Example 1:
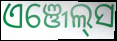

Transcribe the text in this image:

ଏଞ୍ଜେଲ୍‍ସ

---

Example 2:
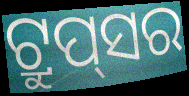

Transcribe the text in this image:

ଟ୍ରୁପ୍‌ସର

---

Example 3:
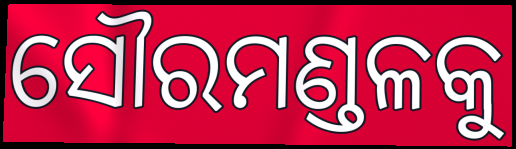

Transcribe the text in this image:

ସୌରମଣ୍ଡଳକୁ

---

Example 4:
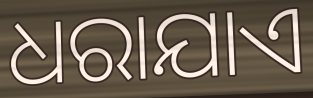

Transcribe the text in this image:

ଧରାଯାଏ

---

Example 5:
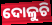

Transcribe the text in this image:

ଦୋଳୁଚି